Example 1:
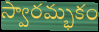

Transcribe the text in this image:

స్వారమ్భకం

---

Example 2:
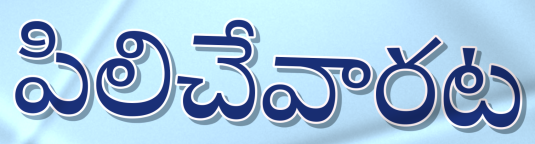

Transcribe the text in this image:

పిలిచేవారట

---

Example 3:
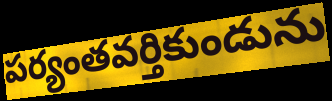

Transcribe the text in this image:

పర్యంతవర్తికుండును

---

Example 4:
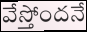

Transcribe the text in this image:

వేస్తోందనే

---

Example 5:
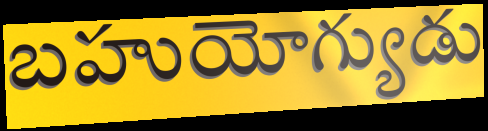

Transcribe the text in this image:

బహుయోగ్యుడు